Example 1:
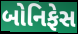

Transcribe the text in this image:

બોનિફેસ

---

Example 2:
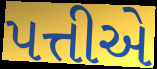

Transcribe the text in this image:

પત્તીએ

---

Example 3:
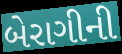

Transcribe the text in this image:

બેરાગીની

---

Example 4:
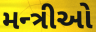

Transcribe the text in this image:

મન્ત્રીઓ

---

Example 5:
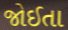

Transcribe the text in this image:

જોઈતા